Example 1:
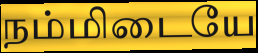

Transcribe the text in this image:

நம்மிடையே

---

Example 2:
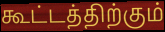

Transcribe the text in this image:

கூட்டத்திற்கும்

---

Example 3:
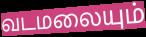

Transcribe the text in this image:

வடமலையும்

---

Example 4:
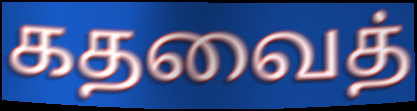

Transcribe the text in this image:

கதவைத்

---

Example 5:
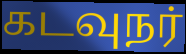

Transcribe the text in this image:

கடவுநர்